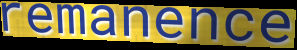
remanence